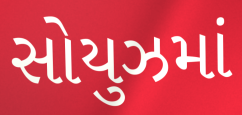
સોયુઝમાં